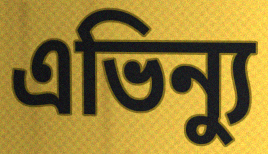
এভিন্যু